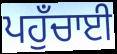
ਪਹੁਁਚਾਈ